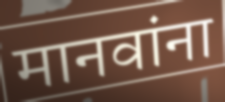
मानवांना